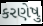
કરણેષુ